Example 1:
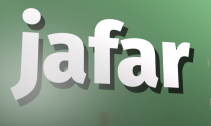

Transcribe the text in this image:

jafar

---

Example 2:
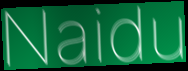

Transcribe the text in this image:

Naidu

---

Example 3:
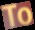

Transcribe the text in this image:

To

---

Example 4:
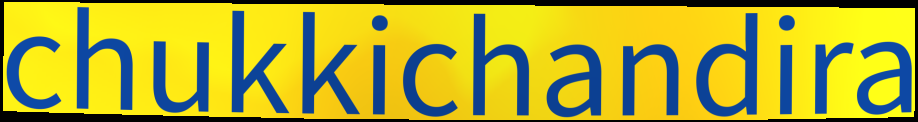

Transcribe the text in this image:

chukkichandira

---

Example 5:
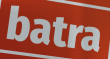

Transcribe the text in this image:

batra